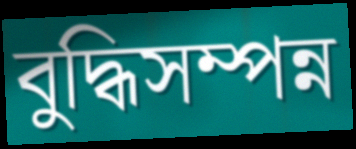
বুদ্ধিসম্পন্ন